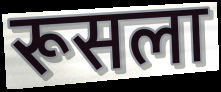
रूसला